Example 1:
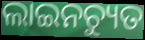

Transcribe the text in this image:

ଲାଇନଚ୍ୟୁତ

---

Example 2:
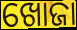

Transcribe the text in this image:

ଖୋଜା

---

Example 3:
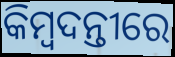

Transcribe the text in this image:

କିମ୍ବଦନ୍ତୀରେ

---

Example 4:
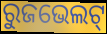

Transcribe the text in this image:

ରୁଜଭେଲଟ୍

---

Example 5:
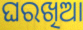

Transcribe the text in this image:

ଘରଖିଆ